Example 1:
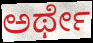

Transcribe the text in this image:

ಅರ್ಥೇ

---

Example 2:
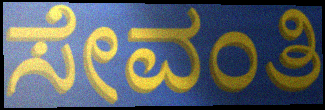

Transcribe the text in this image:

ಸೇವಂತಿ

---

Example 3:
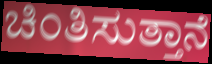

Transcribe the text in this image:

ಚಿಂತಿಸುತ್ತಾನೆ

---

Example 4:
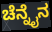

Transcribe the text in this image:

ಚೆನ್ನೈನ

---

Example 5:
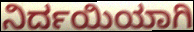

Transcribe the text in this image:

ನಿರ್ದಯಿಯಾಗಿ